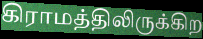
கிராமத்திலிருக்கிற